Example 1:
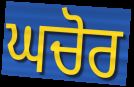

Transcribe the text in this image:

ਘਚੋਰ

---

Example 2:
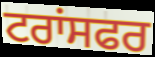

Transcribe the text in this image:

ਟਰਾਂਸਫਰ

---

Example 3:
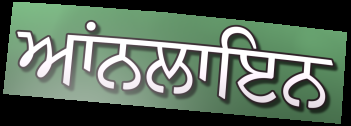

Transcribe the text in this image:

ਆਂਨਲਾਇਨ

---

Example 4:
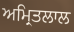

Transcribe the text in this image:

ਅਮ੍ਰਿਤਲਾਲ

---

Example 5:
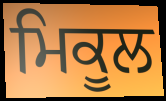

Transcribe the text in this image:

ਮਿਕੂਲ